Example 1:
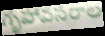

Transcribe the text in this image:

గృహావసరాల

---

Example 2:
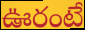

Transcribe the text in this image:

ఊరంటే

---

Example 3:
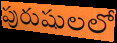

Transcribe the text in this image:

పురుషులలో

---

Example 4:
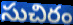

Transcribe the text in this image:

సుచిరం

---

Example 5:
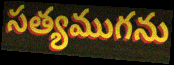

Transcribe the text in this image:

సత్యముగను